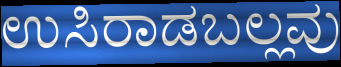
ಉಸಿರಾಡಬಲ್ಲವು